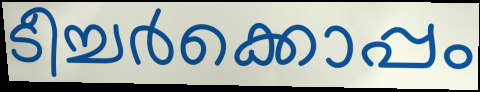
ടീച്ചർക്കൊപ്പം